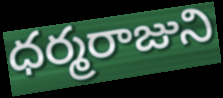
ధర్మరాజుని